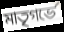
মাতৃগর্ভে